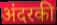
अंदरकी